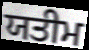
ਯਤੀਮ